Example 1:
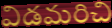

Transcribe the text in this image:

విడమరిచి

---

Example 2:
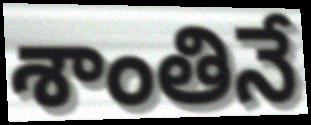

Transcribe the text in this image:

శాంతినే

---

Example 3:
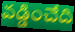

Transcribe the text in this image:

వడ్డించేది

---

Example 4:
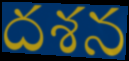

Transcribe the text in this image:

దశన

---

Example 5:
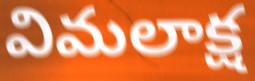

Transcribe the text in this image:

విమలాక్ష